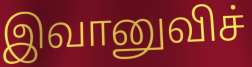
இவானுவிச்